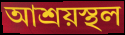
আশ্রয়স্থল